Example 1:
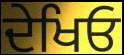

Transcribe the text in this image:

ਦੇਖਿਓ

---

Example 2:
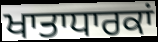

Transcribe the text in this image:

ਖਾਤਾਧਾਰਕਾਂ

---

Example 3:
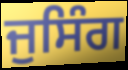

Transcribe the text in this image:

ਜੁਸਿੰਗ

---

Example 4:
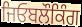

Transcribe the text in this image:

ਜਿਓਬਲੌਕਿੰਗ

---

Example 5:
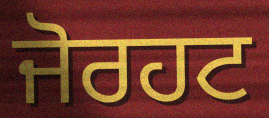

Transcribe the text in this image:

ਜੋਰਹਟ